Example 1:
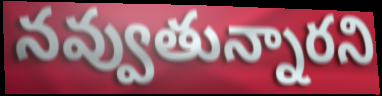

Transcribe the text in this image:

నవ్వుతున్నారని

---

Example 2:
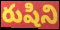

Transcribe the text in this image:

రుషిని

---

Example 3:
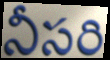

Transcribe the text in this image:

నీసరి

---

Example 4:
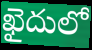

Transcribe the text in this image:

ఖైదులో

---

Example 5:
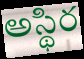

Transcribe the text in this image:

అస్థిర